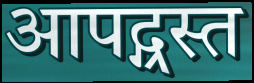
आपद्ग्रस्त